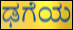
ಢಗೆಯ